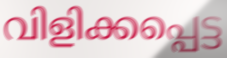
വിളിക്കപ്പെട്ട